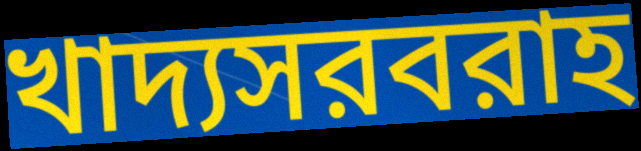
খাদ্যসরবরাহ